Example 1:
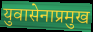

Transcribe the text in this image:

युवासेनाप्रमुख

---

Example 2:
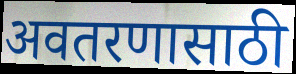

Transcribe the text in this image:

अवतरणासाठी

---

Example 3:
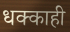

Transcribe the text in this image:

धक्काही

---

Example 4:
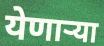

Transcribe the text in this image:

येणाऱ्या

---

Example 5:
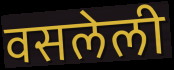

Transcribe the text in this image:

वसलेली